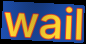
wail